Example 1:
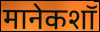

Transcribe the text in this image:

मानेकशॉ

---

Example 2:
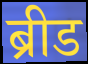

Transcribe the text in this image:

ब्रीड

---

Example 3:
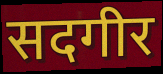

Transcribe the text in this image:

सदगीर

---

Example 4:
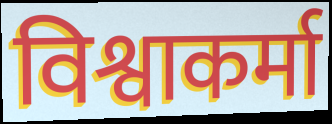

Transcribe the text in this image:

विश्वाकर्मा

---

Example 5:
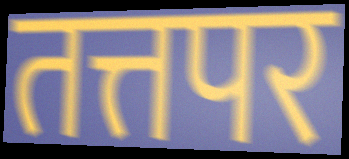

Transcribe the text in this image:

तत्तपर